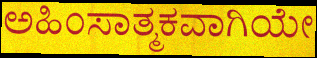
ಅಹಿಂಸಾತ್ಮಕವಾಗಿಯೇ